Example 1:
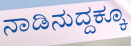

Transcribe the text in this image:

ನಾಡಿನುದ್ದಕ್ಕೂ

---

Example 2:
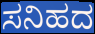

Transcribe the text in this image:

ಸನಿಹದ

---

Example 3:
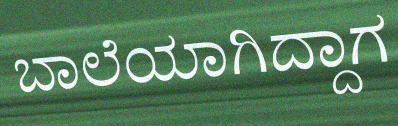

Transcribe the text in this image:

ಬಾಲೆಯಾಗಿದ್ದಾಗ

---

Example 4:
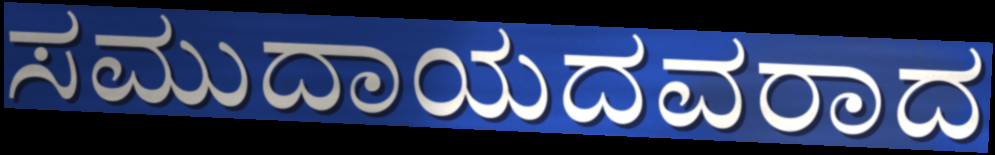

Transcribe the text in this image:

ಸಮುದಾಯದವರಾದ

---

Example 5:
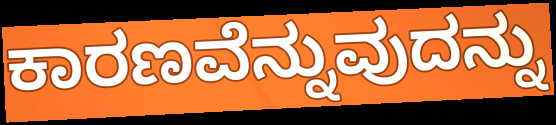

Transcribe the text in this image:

ಕಾರಣವೆನ್ನುವುದನ್ನು